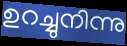
ഉറച്ചുനിന്നു